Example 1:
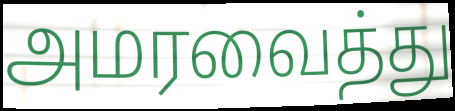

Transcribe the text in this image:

அமரவைத்து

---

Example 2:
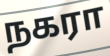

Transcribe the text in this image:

நகரா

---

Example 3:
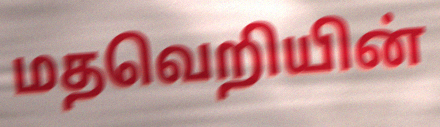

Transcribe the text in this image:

மதவெறியின்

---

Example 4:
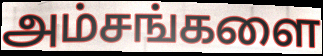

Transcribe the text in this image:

அம்சங்களை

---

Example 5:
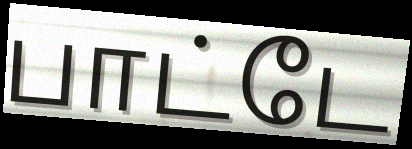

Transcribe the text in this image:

பாட்டே